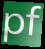
pf